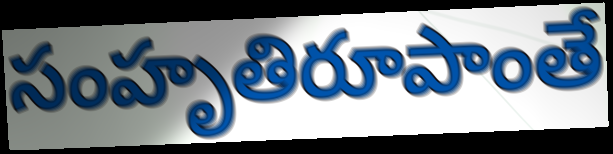
సంహృతిరూపాంతే